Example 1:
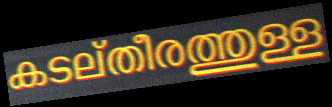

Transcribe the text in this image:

കടല്തീരത്തുള്ള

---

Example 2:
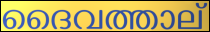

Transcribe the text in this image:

ദൈവത്താല്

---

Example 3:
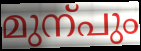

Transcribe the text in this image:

മുന്പും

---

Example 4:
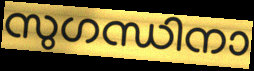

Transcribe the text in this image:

സുഗന്ധിനാ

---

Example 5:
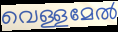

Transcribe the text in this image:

വെള്ളമേൽ